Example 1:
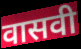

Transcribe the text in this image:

वासवी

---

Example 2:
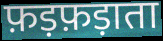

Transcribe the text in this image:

फ़ड़फ़ड़ाता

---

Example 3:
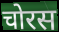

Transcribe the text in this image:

चोरस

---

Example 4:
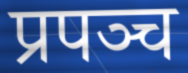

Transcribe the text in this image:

प्रपञ्च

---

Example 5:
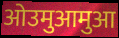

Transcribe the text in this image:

ओउमुआमुआ